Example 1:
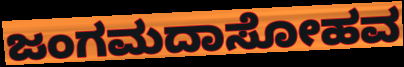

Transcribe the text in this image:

ಜಂಗಮದಾಸೋಹವ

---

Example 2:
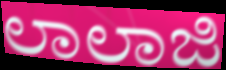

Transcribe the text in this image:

ಲಾಲಾಜಿ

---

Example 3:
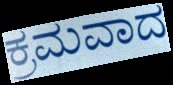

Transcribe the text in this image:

ಕ್ರಮವಾದ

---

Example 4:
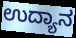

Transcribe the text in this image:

ಉದ್ಯಾನ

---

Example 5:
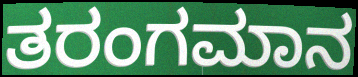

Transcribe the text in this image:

ತರಂಗಮಾನ